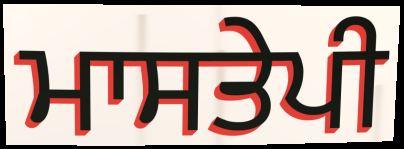
ਮਾਸਤੇਪੀ